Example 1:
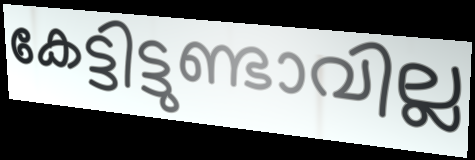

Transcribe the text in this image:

കേട്ടിട്ടുണ്ടാവില്ല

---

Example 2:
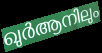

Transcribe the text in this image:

ഖുർആനിലും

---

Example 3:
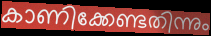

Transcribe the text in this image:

കാണിക്കേണ്ടതിന്നും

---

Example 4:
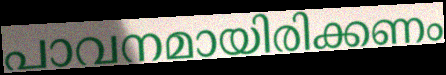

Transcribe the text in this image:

പാവനമായിരിക്കണം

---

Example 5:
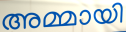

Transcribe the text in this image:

അമ്മായി